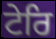
ਟੇਰਿ